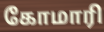
கோமாரி